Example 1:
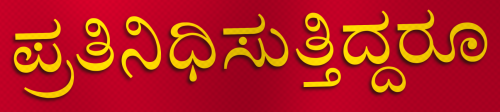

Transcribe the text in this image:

ಪ್ರತಿನಿಧಿಸುತ್ತಿದ್ದರೂ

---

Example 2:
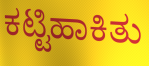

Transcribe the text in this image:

ಕಟ್ಟಿಹಾಕಿತು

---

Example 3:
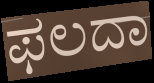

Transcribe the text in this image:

ಫಲದಾ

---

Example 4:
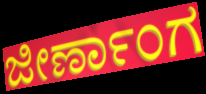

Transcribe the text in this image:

ಜೀರ್ಣಾಂಗ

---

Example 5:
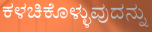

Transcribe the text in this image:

ಕಳಚಿಕೊಳ್ಳುವುದನ್ನು